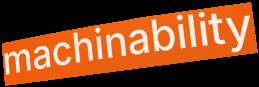
machinability